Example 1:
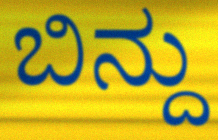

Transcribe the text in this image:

ಬಿನ್ದು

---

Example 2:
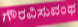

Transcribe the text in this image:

ಗೌರವಿಸುವಂಥ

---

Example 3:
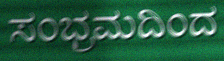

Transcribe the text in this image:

ಸಂಭ್ರಮದಿಂದ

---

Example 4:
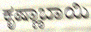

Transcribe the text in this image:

ಕೃಷ್ಣಾಬಾಯಿ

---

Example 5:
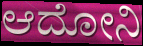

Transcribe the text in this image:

ಆದೋನಿ